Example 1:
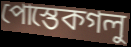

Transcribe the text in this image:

পোস্তেকগলু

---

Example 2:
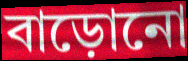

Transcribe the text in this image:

বাড়োনো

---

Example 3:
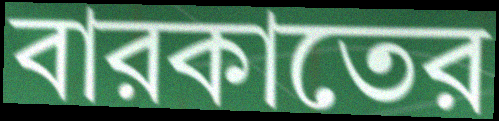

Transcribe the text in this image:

বারকাতের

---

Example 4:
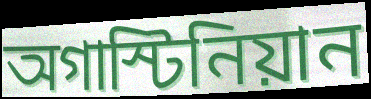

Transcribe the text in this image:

অগাস্টিনিয়ান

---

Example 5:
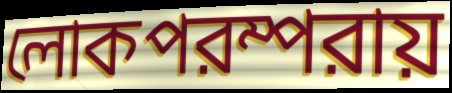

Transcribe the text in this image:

লোকপরম্পরায়